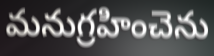
మనుగ్రహించెను